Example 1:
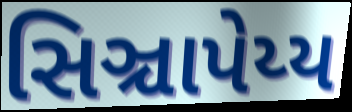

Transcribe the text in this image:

સિઞ્ચાપેય્ય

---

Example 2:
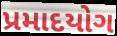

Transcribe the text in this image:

પ્રમાદયોગ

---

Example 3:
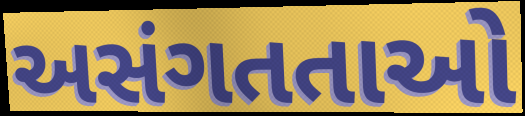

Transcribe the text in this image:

અસંગતતાઓ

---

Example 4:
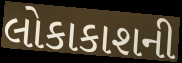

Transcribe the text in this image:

લોકાકાશની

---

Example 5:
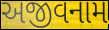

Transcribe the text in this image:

અજીવનામ